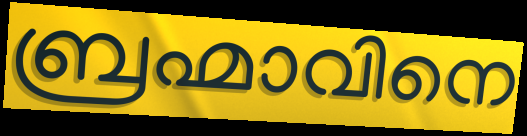
ബ്രഹ്മാവിനെ